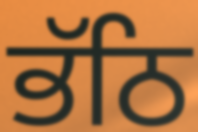
ਭੱਠਿ